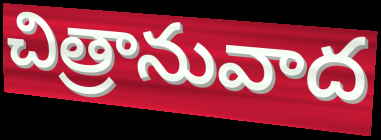
చిత్రానువాద